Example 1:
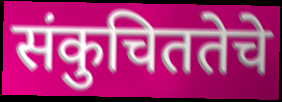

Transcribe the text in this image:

संकुचिततेचे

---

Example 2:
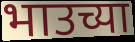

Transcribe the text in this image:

भाउच्या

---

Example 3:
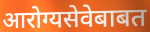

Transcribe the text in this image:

आरोग्यसेवेबाबत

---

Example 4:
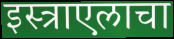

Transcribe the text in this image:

इस्त्राएलाचा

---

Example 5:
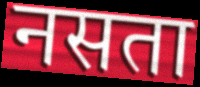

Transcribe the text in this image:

नसता